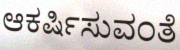
ಆಕರ್ಷಿಸುವಂತೆ